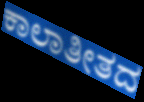
ಕಾಲಾತೀತದ